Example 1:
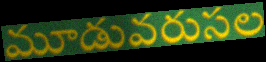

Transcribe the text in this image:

మూడువరుసల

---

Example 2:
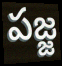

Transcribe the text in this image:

పజ్జ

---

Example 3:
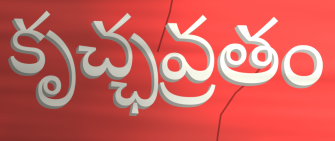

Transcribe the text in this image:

కృచ్ఛవ్రతం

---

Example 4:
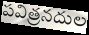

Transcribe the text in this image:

పవిత్రనదుల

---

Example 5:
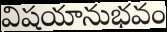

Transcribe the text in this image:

విషయానుభవం